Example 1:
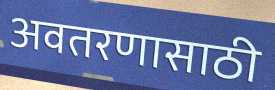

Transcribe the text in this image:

अवतरणासाठी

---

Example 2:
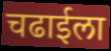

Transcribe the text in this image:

चढाईला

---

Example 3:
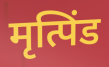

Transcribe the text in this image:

मृत्पिंड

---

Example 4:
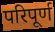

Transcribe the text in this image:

परिपूर्ण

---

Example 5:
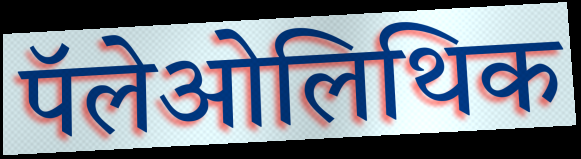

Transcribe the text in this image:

पॅलेओलिथिक